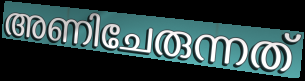
അണിചേരുന്നത്